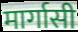
मार्गासी